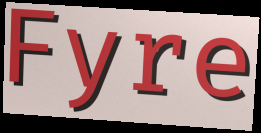
Fyre